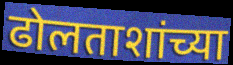
ढोलताशांच्या